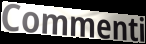
Commenti